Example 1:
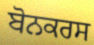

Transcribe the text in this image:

ਬੋਨਕਰਸ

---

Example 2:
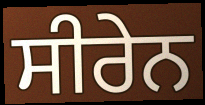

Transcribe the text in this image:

ਸੀਰੇਨ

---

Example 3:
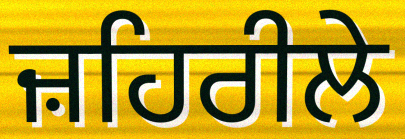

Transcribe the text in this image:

ਜ਼ਹਿਰੀਲੇ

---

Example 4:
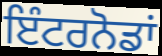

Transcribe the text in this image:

ਇੰਟਰਨੋਡਾਂ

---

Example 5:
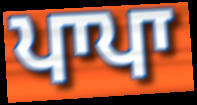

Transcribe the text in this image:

ਪਾਪਾ